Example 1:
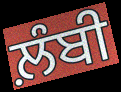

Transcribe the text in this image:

ਲ਼ੰਬੀ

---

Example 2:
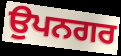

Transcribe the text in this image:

ਉਪਨਗਰ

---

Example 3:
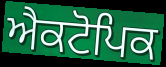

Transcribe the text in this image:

ਐਕਟੋਪਿਕ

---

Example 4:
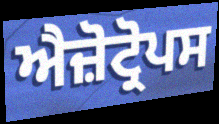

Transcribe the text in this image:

ਐਜ਼ੋਟ੍ਰੋਪਸ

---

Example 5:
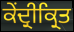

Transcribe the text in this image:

ਕੇਂਦ੍ਰੀਕ੍ਰਿਤ